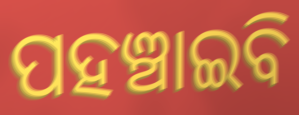
ପହଞ୍ଚାଇବି